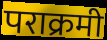
पराक्रमी